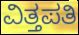
ವಿತ್ತಪತಿ